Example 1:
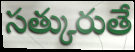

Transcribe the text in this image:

సత్కురుతే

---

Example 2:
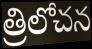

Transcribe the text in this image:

త్రిలోచన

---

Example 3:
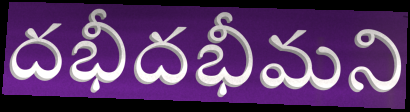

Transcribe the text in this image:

దభీదభీమని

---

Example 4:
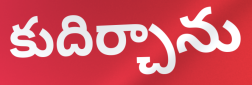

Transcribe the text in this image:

కుదిర్చాను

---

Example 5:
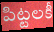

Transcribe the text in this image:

పిట్టలకీ